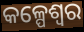
କଳ୍ପେଶ୍ୱର